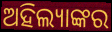
ଅହିଲ୍ୟାଙ୍କର